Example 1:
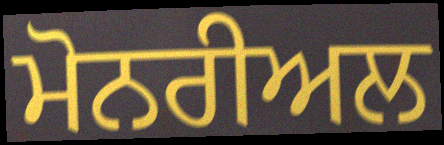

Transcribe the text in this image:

ਮੋਨਰੀਅਲ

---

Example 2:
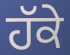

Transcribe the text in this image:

ਹੱਕੇ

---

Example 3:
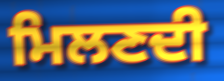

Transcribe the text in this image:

ਮਿਲਣਦੀ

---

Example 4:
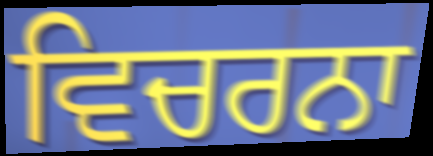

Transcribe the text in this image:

ਵਿਚਰਨਾ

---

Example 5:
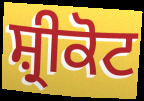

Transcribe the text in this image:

ਸ਼੍ਰੀਕੋਟ